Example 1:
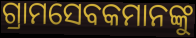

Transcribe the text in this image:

ଗ୍ରାମସେବକମାନଙ୍କୁ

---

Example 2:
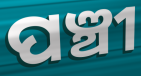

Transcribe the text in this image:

ପଞ୍ଚୀ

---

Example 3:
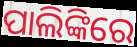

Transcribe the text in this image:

ପାଲିଙ୍କିରେ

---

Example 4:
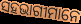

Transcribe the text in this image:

ସହଭାଗୀମାନେ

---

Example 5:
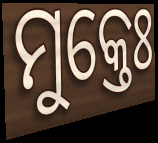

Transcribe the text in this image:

ମୁକ୍ତେଃ